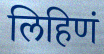
लिहिणं